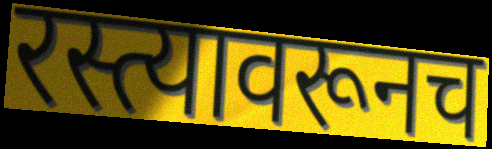
रस्त्यावरूनच